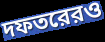
দফতরেরও